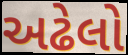
અઢેલો